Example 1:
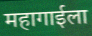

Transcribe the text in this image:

महागाईला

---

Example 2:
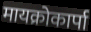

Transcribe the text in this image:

मायक्रोकार्पा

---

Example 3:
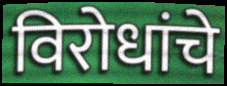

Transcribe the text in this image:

विरोधांचे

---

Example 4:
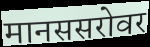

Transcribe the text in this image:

मानससरोवर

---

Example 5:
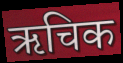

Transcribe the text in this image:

ऋचिक